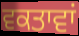
ਵਕਤਾਵਾਂ